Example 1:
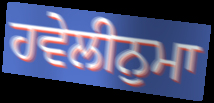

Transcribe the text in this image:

ਹਵੇਲੀਨੁਮਾ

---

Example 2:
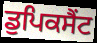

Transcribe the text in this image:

ਡੁਪਿਕਸੈਂਟ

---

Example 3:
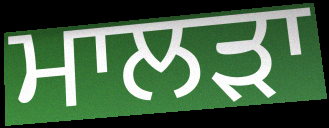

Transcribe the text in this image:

ਮਾਲੜਾ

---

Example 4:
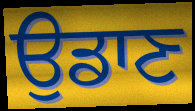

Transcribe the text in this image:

ਉਡਾਣ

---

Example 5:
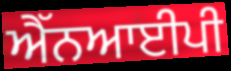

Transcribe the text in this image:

ਐੱਨਆਈਪੀ